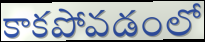
కాకపోవడంలో